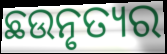
ଛଉନୃତ୍ୟର